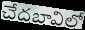
చేదబావిలో